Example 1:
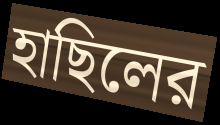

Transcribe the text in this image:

হাছিলের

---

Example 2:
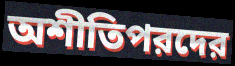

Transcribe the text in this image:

অশীতিপরদের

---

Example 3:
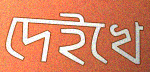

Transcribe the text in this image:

দেইখে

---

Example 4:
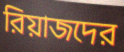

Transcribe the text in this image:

রিয়াজদের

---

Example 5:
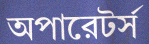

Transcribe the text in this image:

অপারেটর্স